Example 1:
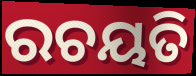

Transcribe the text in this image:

ରଚୟତି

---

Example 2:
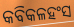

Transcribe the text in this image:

କବିକଳହଂସ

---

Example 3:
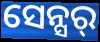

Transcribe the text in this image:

ସେନ୍ସର୍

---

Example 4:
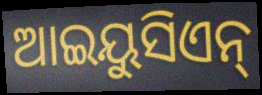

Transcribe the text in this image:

ଆଇୟୁସିଏନ୍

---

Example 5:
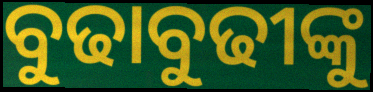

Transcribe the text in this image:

ବୁଢାବୁଢୀଙ୍କୁ